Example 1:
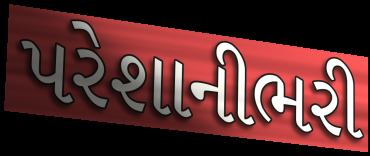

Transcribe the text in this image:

પરેશાનીભરી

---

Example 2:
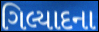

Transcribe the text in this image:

ગિલ્યાદના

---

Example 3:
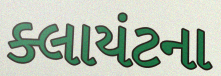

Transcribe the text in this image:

ક્લાયંટના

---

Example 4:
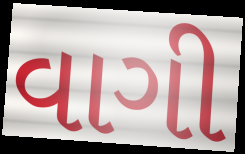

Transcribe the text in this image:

વાગી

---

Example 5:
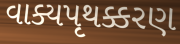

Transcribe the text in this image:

વાક્યપૃથક્કરણ